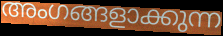
അംഗങ്ങളാക്കുന്ന